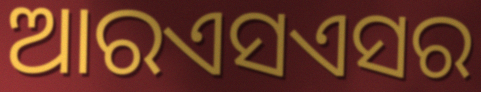
ଆରଏସଏସର